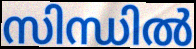
സിന്ധിൽ